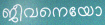
ജീവനെയോ